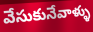
వేసుకునేవాళ్ళు